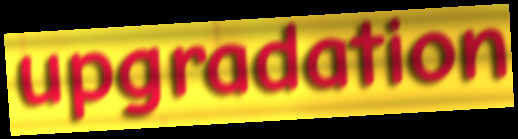
upgradation